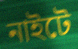
নাইটে